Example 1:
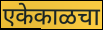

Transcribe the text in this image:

एकेकाळचा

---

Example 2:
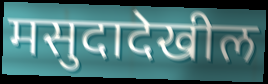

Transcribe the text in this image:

मसुदादेखील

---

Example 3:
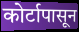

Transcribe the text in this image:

कोर्टापासून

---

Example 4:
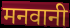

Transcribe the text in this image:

मनवानी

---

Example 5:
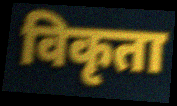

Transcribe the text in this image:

विकृता